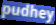
pudhey